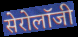
सेरोलॉजी